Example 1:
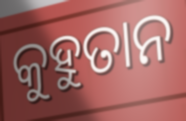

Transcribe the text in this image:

କୁହୁତାନ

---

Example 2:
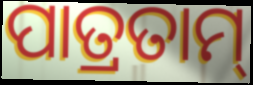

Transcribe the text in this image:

ପାତ୍ରତାମ୍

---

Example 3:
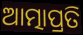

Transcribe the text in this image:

ଆତ୍ମାପ୍ରତି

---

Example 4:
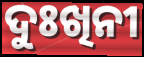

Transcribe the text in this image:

ଦୁଃଖିନୀ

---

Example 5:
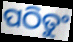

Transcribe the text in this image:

ପଠିତୁଂ